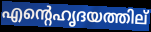
എന്റെഹൃദയത്തില്